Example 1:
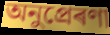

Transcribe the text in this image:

অনুপ্ৰেৰণা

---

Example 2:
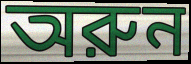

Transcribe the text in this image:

অৰুন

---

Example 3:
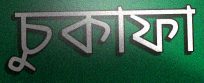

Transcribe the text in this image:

চুকাফা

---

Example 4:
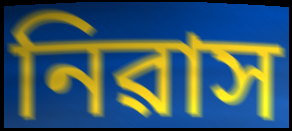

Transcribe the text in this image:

নিৱাস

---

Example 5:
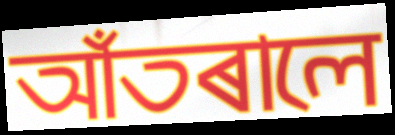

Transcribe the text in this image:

আঁতৰালে